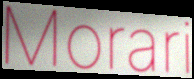
Morari